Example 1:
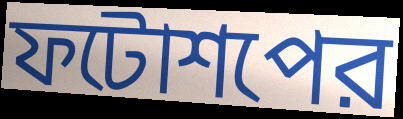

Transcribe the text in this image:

ফটোশপের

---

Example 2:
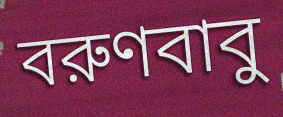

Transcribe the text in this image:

বরুণবাবু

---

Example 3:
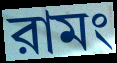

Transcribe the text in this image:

রামং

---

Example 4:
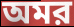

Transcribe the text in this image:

অমর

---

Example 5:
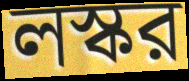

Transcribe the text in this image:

লস্কর